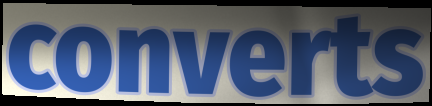
converts